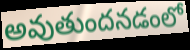
అవుతుందనడంలో